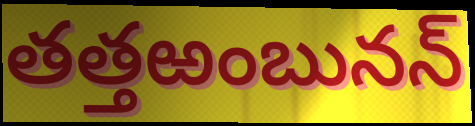
తత్తఱంబునన్